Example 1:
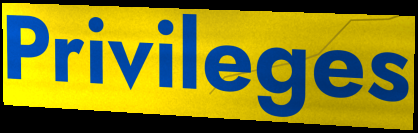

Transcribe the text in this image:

Privileges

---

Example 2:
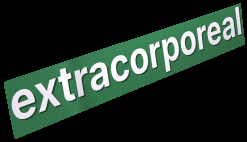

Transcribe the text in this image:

extracorporeal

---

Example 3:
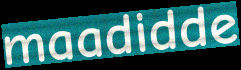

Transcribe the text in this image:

maadidde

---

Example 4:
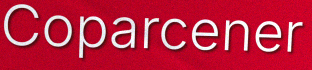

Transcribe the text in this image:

Coparcener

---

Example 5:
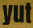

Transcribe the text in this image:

yut